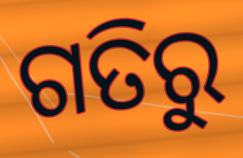
ଗତିରୁ